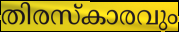
തിരസ്കാരവും